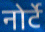
नोर्टे